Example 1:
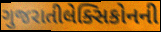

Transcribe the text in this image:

ગુજરાતીલેક્સિકોનની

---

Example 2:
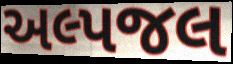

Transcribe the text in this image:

અલ્પજલ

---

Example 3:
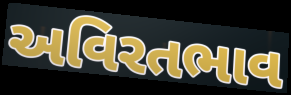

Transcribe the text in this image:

અવિરતભાવ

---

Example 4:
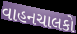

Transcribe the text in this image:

વાહનચાલકો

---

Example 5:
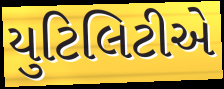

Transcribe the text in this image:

યુટિલિટીએ